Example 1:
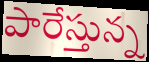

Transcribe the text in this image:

పారేస్తున్న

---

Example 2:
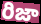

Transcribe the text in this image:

రిజా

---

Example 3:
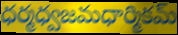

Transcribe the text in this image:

ధర్మధ్వజమధార్మికమ్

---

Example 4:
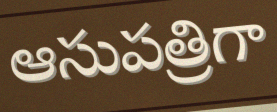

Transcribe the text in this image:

ఆసుపత్రిగా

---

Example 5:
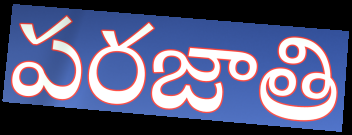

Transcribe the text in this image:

పరజాతి